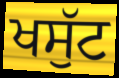
ਖਸੁੱਟ